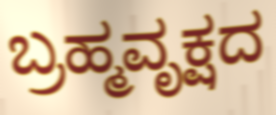
ಬ್ರಹ್ಮವೃಕ್ಷದ